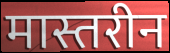
मास्तरीन